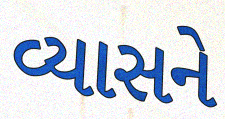
વ્યાસને